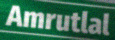
Amrutlal